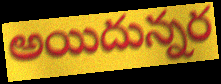
అయిదున్నర